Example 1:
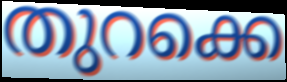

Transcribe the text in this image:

തുറക്കെ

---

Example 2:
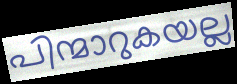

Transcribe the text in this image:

പിന്മാറുകയല്ല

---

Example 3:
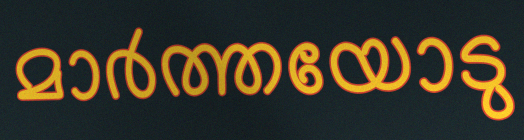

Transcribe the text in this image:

മാർത്തയോടു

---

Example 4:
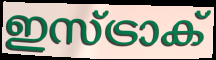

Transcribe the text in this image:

ഇസ്ട്രാക്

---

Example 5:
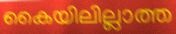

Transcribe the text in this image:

കൈയിലില്ലാത്ത